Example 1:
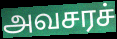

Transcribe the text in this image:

அவசரச்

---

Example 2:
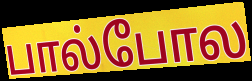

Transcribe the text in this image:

பால்போல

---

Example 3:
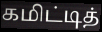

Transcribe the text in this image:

கமிட்டித்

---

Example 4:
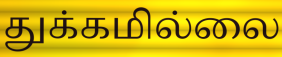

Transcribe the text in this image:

துக்கமில்லை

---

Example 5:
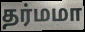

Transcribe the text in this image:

தர்மமா